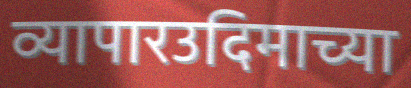
व्यापारउदिमाच्या